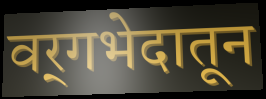
वर्गभेदातून